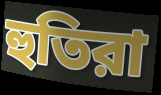
হুতিরা